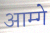
आम्गे